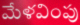
మేళవింపు